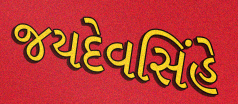
જયદેવસિંહે